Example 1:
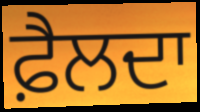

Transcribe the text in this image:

ਫ਼ੈਲਦਾ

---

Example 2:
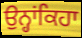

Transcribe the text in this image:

ਉਨ੍ਹਾਂਕਿਹਾ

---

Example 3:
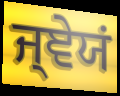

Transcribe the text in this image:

ਜ੍ਞੇਯਂ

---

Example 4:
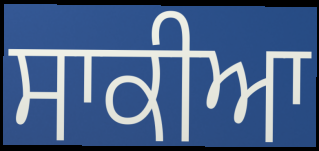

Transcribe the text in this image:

ਸਾਕੀਆ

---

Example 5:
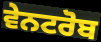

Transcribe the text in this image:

ਵੇਨਟਰੋਬ